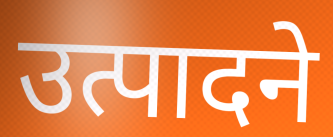
उत्पादने